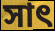
সাৎ